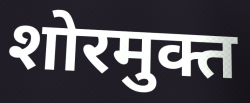
शोरमुक्त